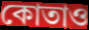
কোতাও